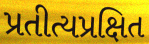
પ્રતીત્યપ્રક્ષિત